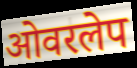
ओवरलेप